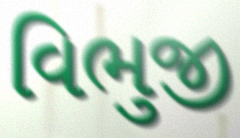
વિભુજી